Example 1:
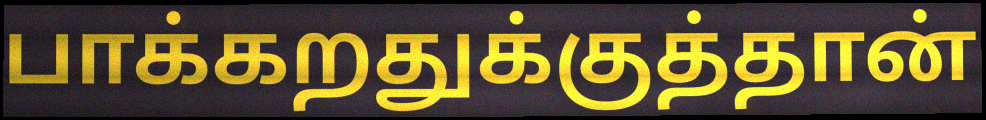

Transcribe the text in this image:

பாக்கறதுக்குத்தான்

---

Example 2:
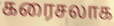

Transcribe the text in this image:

கரைசலாக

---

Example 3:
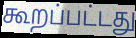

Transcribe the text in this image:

கூறப்பட்டது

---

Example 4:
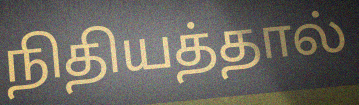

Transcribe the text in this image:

நிதியத்தால்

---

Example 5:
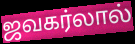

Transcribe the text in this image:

ஜவகர்லால்